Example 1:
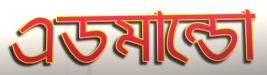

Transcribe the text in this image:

এডমান্ডো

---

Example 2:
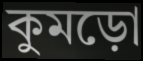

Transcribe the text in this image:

কুমড়ো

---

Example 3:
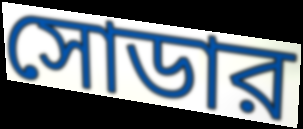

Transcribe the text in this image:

সোডার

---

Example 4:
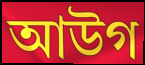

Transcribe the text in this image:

আউগ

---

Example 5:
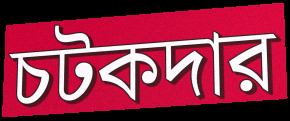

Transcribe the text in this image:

চটকদার